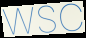
WSC